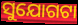
ସୁଯୋଗଟା